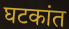
घटकांत